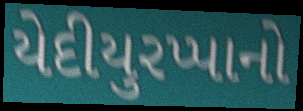
યેદીયુરપ્પાનો